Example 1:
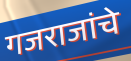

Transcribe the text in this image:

गजराजांचे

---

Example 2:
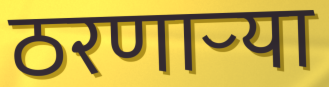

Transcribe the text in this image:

ठरणाऱ्या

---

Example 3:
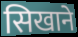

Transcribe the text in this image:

सिखाने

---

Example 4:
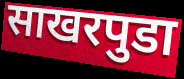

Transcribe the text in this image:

साखरपुडा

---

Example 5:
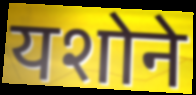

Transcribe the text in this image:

यशोने